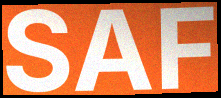
SAF